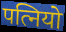
पत्नियो